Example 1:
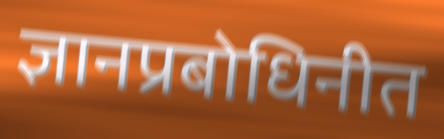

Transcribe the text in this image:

ज्ञानप्रबोधिनीत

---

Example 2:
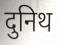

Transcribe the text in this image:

दुनिथ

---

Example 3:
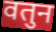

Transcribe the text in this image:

वतुन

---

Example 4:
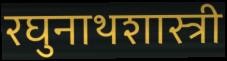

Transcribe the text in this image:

रघुनाथशास्त्री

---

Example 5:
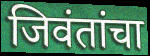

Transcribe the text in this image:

जिवंतांचा